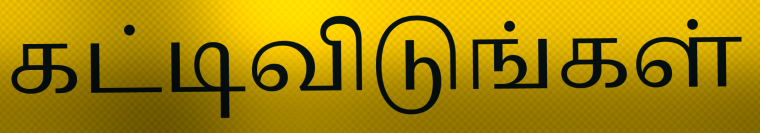
கட்டிவிடுங்கள்